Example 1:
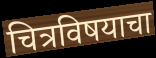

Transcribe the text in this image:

चित्रविषयाचा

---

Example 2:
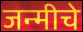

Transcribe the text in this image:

जन्मीचे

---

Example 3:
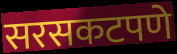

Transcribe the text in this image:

सरसकटपणे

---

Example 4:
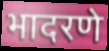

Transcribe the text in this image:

भादरणे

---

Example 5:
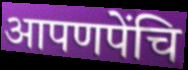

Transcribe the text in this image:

आपणपेंचि